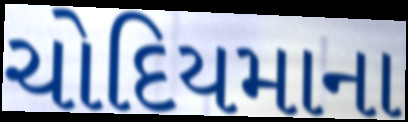
ચોદિયમાના